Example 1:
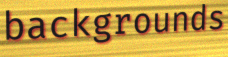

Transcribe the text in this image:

backgrounds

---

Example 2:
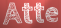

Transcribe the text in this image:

Atte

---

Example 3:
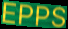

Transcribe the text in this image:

EPPS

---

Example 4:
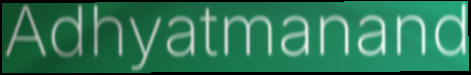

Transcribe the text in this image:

Adhyatmanand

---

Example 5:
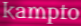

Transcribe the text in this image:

kampto